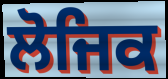
ਲੋਜਿਕ